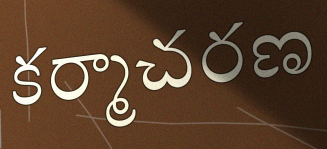
కర్మాచరణ